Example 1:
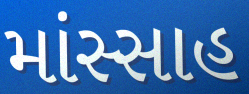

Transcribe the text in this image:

માંસ્સાહ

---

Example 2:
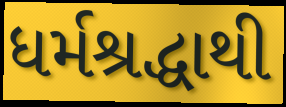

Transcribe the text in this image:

ધર્મશ્રદ્ધાથી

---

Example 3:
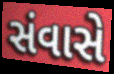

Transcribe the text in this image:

સંવાસે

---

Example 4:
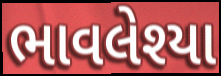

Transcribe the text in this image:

ભાવલેશ્યા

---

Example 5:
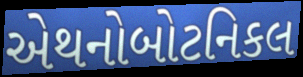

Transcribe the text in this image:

એથનોબોટનિકલ